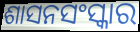
ଶାସନସଂସ୍କାର